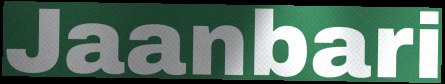
Jaanbari